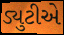
ડ્યુટીએ